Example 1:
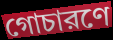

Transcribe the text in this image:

গোচারণে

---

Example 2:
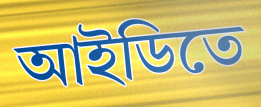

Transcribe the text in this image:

আইডিতে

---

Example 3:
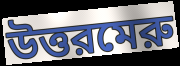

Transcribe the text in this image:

উত্তরমেরু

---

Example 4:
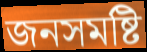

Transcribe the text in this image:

জনসমষ্টি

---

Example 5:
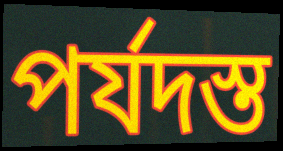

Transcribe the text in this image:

পর্যদস্ত